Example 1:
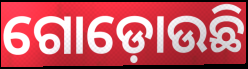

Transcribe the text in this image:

ଗୋଡ଼ୋଉଛି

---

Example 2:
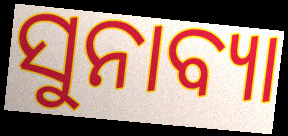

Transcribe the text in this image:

ସୁନାବ୍ୟା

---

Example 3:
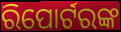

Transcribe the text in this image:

ରିପୋର୍ଟରଙ୍କ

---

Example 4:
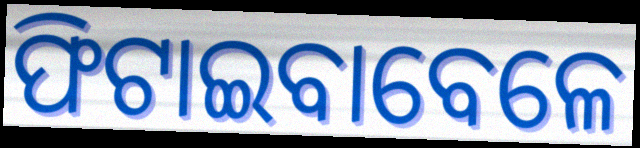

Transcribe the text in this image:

ଫିଟାଇବାବେଳେ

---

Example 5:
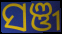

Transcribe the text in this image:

ସଞ୍ଜ